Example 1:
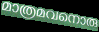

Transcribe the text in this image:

മാത്രമവനൊരു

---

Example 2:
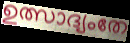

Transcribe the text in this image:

ഉത്സാദ്യംതേ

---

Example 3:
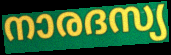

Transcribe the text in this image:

നാരദസ്യ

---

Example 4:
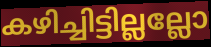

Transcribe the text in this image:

കഴിച്ചിട്ടില്ലല്ലോ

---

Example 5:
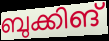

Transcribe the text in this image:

ബുക്കിങ്